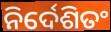
ନିର୍ଦେଶିତଂ